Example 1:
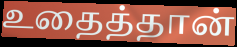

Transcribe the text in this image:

உதைத்தான்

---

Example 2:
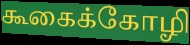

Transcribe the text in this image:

கூகைக்கோழி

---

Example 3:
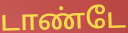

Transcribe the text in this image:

டாண்டே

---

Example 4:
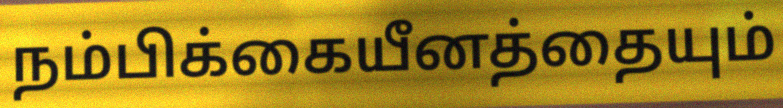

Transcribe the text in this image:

நம்பிக்கையீனத்தையும்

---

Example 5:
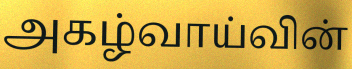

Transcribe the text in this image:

அகழ்வாய்வின்